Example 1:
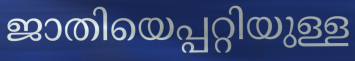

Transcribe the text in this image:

ജാതിയെപ്പറ്റിയുള്ള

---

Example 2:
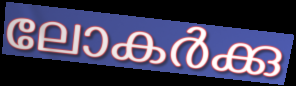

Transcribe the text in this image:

ലോകർക്കു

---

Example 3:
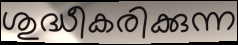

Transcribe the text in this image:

ശുദ്ധീകരിക്കുന്ന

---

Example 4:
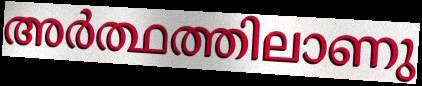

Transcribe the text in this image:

അർത്ഥത്തിലാണു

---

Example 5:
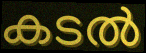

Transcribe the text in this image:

കടൽ